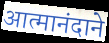
आत्मानंदाने